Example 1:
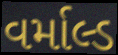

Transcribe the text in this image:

વર્માલ્ડ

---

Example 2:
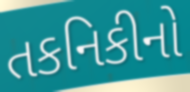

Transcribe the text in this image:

તકનિકીનો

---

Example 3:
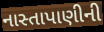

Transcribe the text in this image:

નાસ્તાપાણીની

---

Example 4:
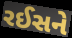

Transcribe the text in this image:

રઈસને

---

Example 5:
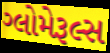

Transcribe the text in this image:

ગ્લોમેરૂલ્સ